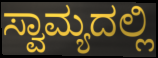
ಸ್ವಾಮ್ಯದಲ್ಲಿ